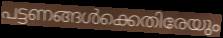
പട്ടണങ്ങൾക്കെതിരേയും